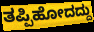
ತಪ್ಪಿಹೋದದ್ದು